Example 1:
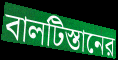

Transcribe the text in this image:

বালটিস্তানের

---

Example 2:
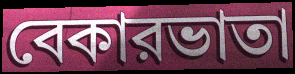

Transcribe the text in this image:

বেকারভাতা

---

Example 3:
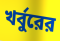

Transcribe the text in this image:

খর্বুরের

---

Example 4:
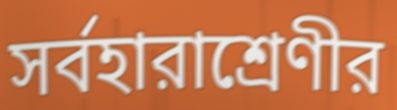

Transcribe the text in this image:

সর্বহারাশ্রেণীর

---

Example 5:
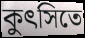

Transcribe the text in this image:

কুৎসিতে